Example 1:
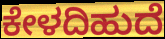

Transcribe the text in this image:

ಕೇಳದಿಹುದೆ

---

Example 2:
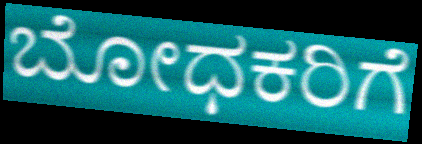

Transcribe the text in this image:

ಬೋಧಕರಿಗೆ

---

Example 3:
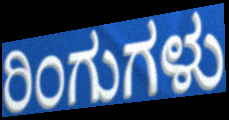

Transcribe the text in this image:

ರಿಂಗುಗಳು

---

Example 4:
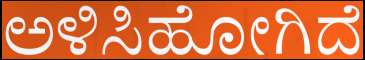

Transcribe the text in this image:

ಅಳಿಸಿಹೋಗಿದೆ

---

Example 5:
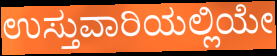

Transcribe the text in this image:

ಉಸ್ತುವಾರಿಯಲ್ಲಿಯೇ